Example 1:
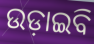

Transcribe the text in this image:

ଉଡ଼ାଇବି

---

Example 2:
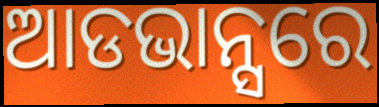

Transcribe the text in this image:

ଆଡଭାନ୍ସରେ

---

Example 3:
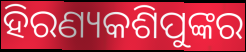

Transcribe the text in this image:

ହିରଣ୍ୟକଶିପୁଙ୍କର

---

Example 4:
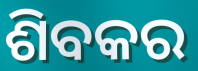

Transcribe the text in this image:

ଶିବକର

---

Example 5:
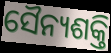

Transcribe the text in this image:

ସୈନ୍ୟଶକ୍ତି